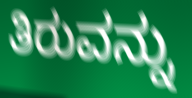
ತಿರುವನ್ನು